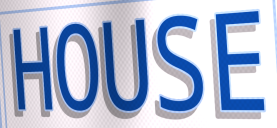
HOUSE